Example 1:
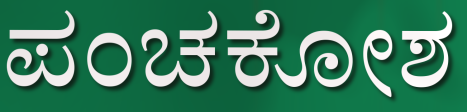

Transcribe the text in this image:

ಪಂಚಕೋಶ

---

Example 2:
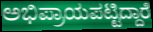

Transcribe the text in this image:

ಅಭಿಪ್ರಾಯಪಟ್ಟಿದ್ದಾರೆ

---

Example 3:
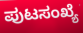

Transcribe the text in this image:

ಪುಟಸಂಖ್ಯೆ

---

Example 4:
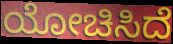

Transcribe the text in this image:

ಯೋಚಿಸಿದೆ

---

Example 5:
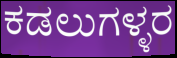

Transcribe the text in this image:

ಕಡಲುಗಳ್ಳರ